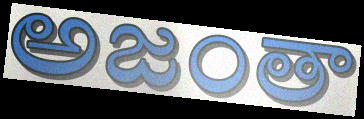
అజంతా